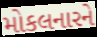
મોકલનારને